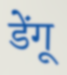
डेंगू